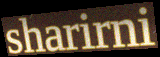
sharirni